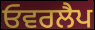
ਓਵਰਲੈਪ